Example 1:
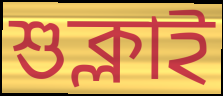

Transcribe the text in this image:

শুক্লাই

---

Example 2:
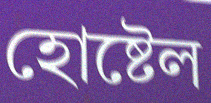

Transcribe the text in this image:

হোষ্টেল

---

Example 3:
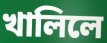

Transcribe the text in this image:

খালিলে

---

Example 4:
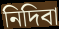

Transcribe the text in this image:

নিদিবা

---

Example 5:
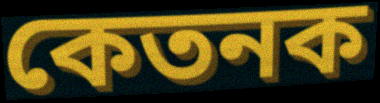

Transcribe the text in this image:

কেতনক